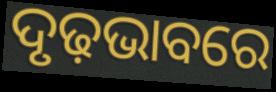
ଦୃଢ଼ଭାବରେ